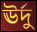
ঊর্দু